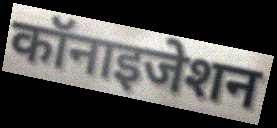
कॉनाइजेशन